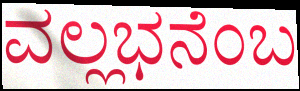
ವಲ್ಲಭನೆಂಬ